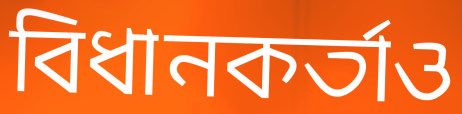
বিধানকর্তাও